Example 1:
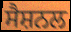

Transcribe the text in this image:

ਸੈਸ਼ਨਲ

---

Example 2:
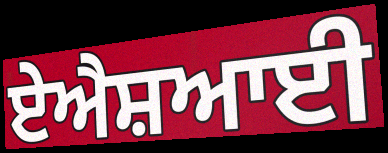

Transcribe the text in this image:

ਏਐਸ਼ਆਈ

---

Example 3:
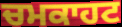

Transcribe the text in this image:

ਚਮਕਾਹਟ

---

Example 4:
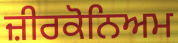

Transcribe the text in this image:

ਜ਼ੀਰਕੋਨਿਅਮ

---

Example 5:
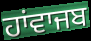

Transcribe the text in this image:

ਹਾਂਵਾਜਬ